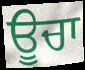
ਊਚਾ